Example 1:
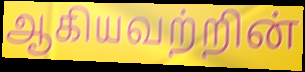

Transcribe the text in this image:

ஆகியவற்றின்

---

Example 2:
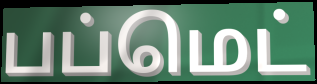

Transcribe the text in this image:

பப்மெட்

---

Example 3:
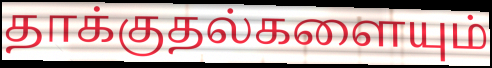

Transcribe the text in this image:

தாக்குதல்களையும்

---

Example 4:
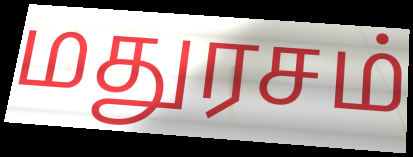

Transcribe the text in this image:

மதுரசம்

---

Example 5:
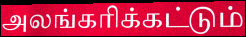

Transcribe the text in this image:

அலங்கரிக்கட்டும்